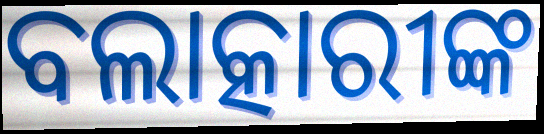
ବଲାତ୍କାରୀଙ୍କ